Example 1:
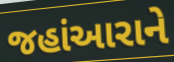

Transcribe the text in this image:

જહાંઆરાને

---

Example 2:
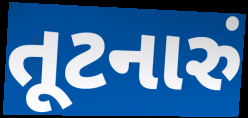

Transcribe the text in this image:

તૂટનારું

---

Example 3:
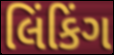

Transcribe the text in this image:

લિંકિંગ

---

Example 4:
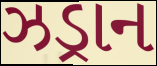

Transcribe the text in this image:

ઝડ્રાન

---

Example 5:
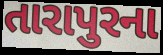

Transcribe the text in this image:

તારાપુરના